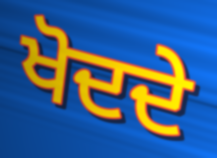
ਖੋਦਦੇ